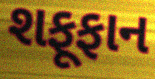
શફૂફાન